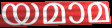
യമാമ